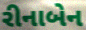
રીનાબેન